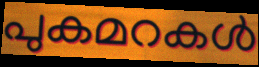
പുകമറകൾ